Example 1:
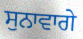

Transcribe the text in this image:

ਸੁਨਾਵਾਗੇ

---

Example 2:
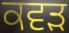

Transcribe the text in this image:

ਕਵੜ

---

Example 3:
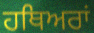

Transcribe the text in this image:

ਹਥਿਅਰਾਂ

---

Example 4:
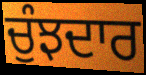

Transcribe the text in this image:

ਚੁੰਝਦਾਰ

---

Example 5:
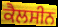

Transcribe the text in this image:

ਕੈਲਸੀਨ